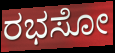
ರಭಸೋ